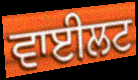
ਵਾਈਲਟ